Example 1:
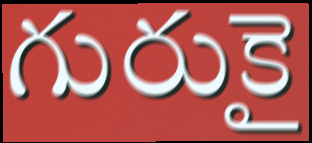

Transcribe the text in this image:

గురుకై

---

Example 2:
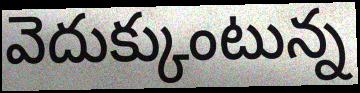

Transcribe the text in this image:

వెదుక్కుంటున్న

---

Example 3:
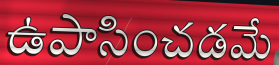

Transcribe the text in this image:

ఉపాసించడమే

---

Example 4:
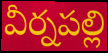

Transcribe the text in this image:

వీర్నపల్లి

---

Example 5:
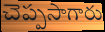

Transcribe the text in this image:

చెప్పసాగారు